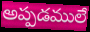
అప్పడములే